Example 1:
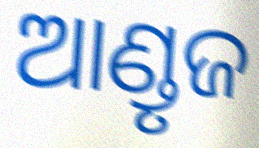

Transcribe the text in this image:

ଆଣ୍ଡୃଜ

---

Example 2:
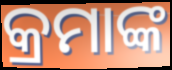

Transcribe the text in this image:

କ୍ରମାଙ୍କ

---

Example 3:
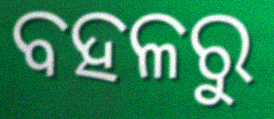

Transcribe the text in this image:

ବହଳରୁ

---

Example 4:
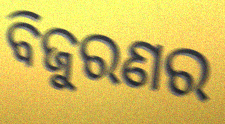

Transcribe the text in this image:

ବିଜୁରଣର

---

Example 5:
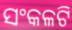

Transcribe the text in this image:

ସଂକଳଟି